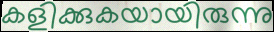
കളിക്കുകയായിരുന്നു